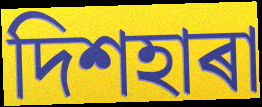
দিশহাৰা